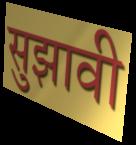
सुझावी